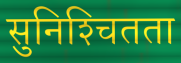
सुनिश्चितता